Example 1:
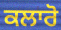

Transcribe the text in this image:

ਕਲਾਰੋ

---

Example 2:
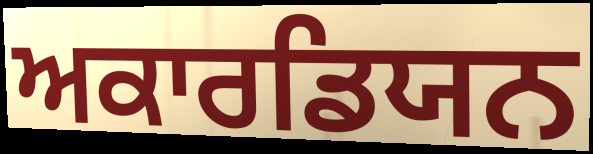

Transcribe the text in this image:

ਅਕਾਰਡਿਯਨ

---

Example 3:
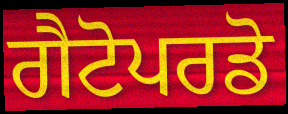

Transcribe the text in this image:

ਗੈਟੋਪਰਡੋ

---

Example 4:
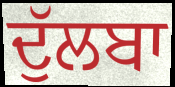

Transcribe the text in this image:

ਦੁੱਲਬਾ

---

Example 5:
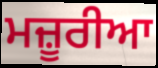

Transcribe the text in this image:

ਮਜ਼ੂਰੀਆ